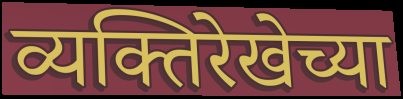
व्यक्तिरेखेच्या